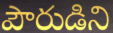
పౌరుడిని